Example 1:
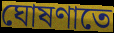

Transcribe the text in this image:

ঘোষণাতে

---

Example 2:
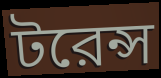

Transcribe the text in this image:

টরেন্স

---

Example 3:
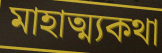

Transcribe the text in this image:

মাহাত্ম্যকথা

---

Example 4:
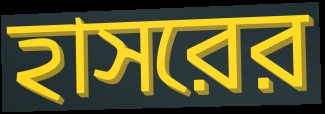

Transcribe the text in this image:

হাসরের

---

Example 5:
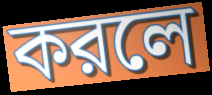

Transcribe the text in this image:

করলে